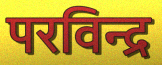
परविन्द्र